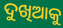
ଦୁଖିଆକୁ